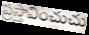
ప్రస్తావించుచు